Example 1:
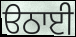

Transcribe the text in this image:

ੳਠਾਈ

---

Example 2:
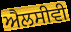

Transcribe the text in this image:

ਐਲਸੀਵੀ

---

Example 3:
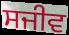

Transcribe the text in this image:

ਸਜੀਵ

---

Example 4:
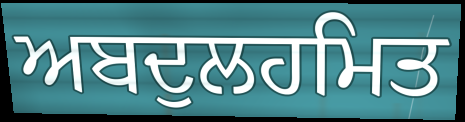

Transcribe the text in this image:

ਅਬਦੁਲਹਮਿਤ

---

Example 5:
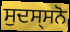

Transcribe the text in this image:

ਸੁਦਸ੍ਸਨੋ